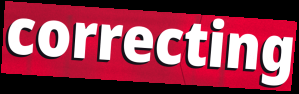
correcting